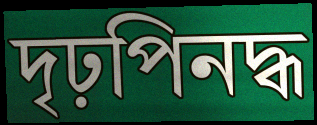
দৃঢ়পিনদ্ধ